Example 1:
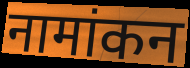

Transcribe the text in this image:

नामांकन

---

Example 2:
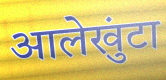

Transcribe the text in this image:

आलेखुंटा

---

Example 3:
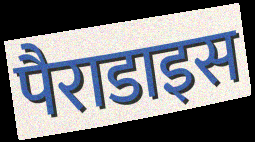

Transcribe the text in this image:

पैराडाइस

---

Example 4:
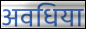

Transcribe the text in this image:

अवधिया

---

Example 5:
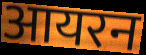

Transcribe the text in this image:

आयरन